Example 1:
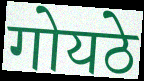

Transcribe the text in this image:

गोयठे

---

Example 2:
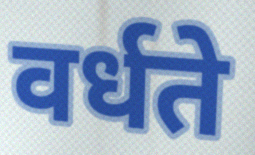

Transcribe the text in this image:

वर्धते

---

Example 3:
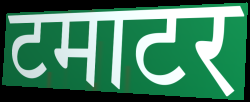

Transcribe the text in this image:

टमाटर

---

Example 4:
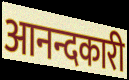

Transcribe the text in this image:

आनन्दकारी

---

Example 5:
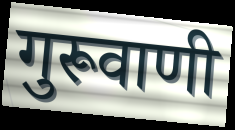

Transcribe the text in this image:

गुरूवाणी